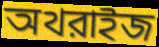
অথরাইজ